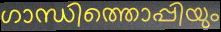
ഗാന്ധിത്തൊപ്പിയും